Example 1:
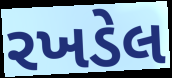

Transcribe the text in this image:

રખડેલ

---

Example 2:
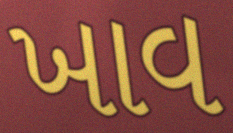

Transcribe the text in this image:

ખાવ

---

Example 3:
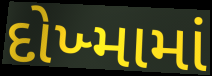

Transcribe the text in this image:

દોખ્મામાં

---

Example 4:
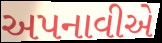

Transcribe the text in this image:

અપનાવીએ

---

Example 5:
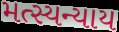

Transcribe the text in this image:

મત્સ્યન્યાય